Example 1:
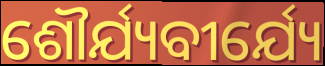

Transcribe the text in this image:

ଶୌର୍ଯ୍ୟବୀର୍ଯ୍ୟେ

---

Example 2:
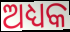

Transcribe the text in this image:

ଅଧ୍ଯକ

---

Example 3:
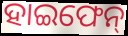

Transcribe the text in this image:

ହାଇଫେନ୍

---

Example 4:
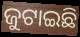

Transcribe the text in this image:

ଜୁଟାଇଛି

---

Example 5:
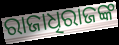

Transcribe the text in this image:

ରାଜାଧିରାଜଙ୍କ